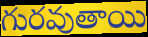
గురవుతాయి